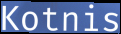
Kotnis